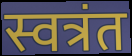
स्वत्रंत